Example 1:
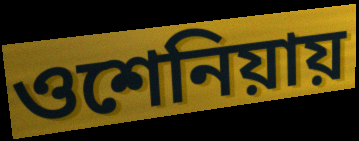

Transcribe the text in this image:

ওশেনিয়ায়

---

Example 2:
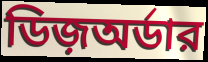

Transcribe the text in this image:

ডিজ়অর্ডার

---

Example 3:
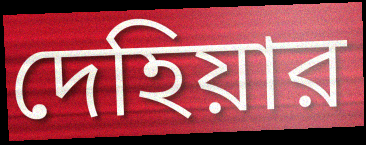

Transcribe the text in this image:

দেহিয়ার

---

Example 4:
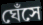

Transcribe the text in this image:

ঘেঁসে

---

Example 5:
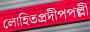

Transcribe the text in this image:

লোহিতপ্রদীপপল্লী